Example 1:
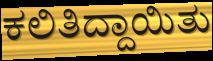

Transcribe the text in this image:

ಕಲಿತಿದ್ದಾಯಿತು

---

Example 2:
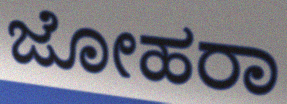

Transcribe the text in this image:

ಜೋಹರಾ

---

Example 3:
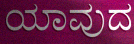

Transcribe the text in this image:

ಯಾವುದ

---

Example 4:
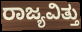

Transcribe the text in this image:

ರಾಜ್ಯವಿತ್ತು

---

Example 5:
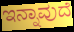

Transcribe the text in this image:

ಇನ್ನಾವುದೆ